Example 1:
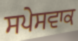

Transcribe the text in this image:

ਸਪੇਸਵਾਕ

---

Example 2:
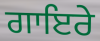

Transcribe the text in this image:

ਗਾਇਰੇ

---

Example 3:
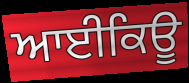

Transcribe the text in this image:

ਆਈਕਿਊ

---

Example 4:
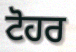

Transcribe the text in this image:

ਟੋਹਰ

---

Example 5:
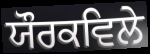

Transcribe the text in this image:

ਯੌਰਕਵਿਲੇ